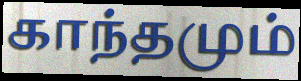
காந்தமும்